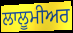
ਲਾਲੂਮੀਅਰ